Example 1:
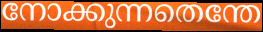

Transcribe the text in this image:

നോക്കുന്നതെന്തേ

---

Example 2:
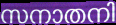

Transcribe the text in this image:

സനാതനി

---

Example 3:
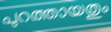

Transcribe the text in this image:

പുറത്തായതും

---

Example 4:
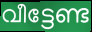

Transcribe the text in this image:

വീട്ടേണ്ട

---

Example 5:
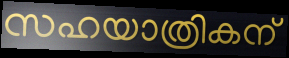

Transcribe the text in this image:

സഹയാത്രികന്